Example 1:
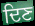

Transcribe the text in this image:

ਦਿਣ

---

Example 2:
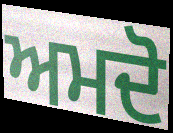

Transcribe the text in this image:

ਅਮਦੋ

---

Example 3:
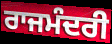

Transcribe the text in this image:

ਰਾਜਮੰਦਰੀ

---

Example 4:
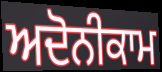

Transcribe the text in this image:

ਅਦੋਨੀਕਾਮ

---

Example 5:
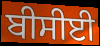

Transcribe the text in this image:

ਬੀਸੀਈ